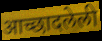
आच्छादलेली